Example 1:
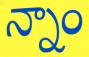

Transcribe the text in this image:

న్నాం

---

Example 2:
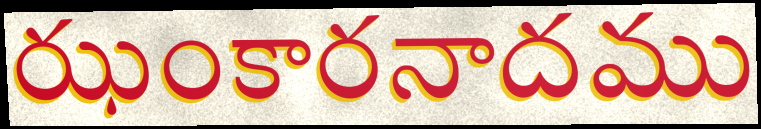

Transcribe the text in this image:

ఝంకారనాదము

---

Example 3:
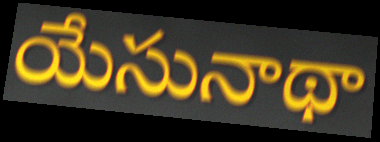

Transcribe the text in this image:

యేసునాథా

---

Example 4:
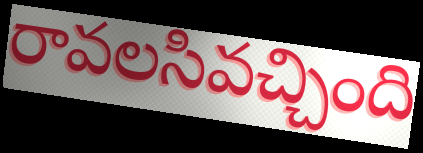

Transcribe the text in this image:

రావలసివచ్చింది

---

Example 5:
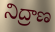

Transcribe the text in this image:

నిద్రాణ